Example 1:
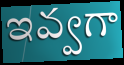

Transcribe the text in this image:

ఇవ్వగా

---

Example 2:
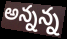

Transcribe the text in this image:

అన్నన్న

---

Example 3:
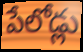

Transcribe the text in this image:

పేలోడ్లు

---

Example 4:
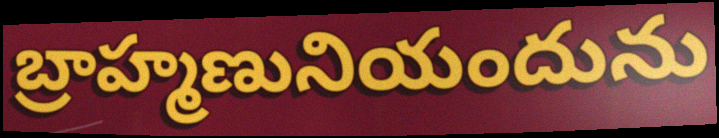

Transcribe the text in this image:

బ్రాహ్మణునియందును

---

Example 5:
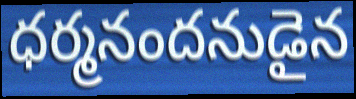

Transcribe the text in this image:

ధర్మనందనుడైన